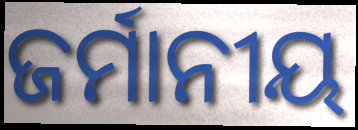
ଜର୍ମାନୀୟ